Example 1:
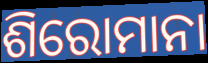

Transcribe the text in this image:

ଶିରୋମାନା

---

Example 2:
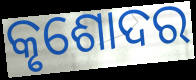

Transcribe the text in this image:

କୃଶୋଦର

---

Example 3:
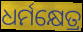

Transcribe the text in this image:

ଧର୍ମକ୍ଷେତ୍ର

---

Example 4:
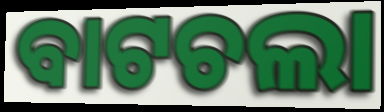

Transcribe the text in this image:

ବାଟଚଲା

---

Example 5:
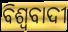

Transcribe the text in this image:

ବିଶ୍ଵବାଦୀ